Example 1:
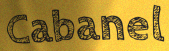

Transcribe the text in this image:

Cabanel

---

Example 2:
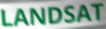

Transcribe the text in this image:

LANDSAT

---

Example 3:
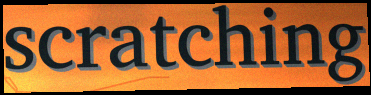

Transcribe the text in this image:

scratching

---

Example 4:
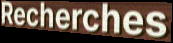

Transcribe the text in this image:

Recherches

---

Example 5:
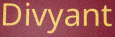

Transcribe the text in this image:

Divyant